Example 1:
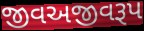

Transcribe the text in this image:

જીવઅજીવરૂપ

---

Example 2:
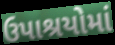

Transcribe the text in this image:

ઉપાશ્રયોમાં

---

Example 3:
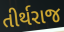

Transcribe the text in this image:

તીર્થરાજ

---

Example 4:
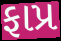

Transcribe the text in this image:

ફાપ્ર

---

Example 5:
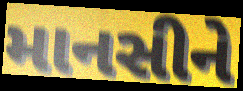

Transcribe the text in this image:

માનસીને